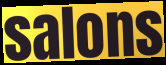
salons